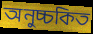
অনুচ্চকিত